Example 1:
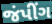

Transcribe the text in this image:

જંપીંગ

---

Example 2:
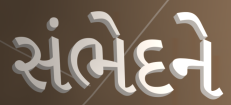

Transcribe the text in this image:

સંભેદને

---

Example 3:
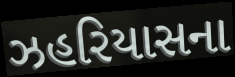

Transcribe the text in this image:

ઝહરિયાસના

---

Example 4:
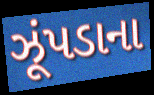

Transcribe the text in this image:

ઝૂંપડાના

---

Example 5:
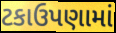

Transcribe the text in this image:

ટકાઉપણામાં